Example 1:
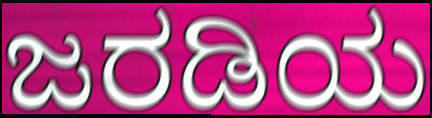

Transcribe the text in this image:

ಜರಡಿಯ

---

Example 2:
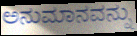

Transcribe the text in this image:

ಅನುಮಾನವನ್ನು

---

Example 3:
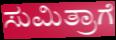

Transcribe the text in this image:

ಸುಮಿತ್ರಾಗೆ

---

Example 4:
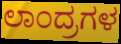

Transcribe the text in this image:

ಲಾಂದ್ರಗಳ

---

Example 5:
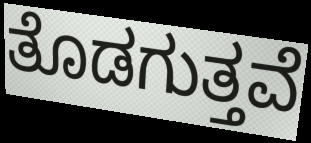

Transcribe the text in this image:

ತೊಡಗುತ್ತವೆ